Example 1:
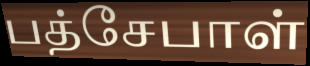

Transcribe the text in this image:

பத்சேபாள்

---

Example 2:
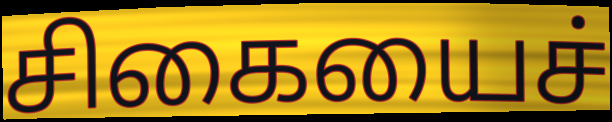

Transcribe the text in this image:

சிகையைச்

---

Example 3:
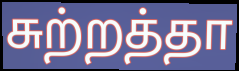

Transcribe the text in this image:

சுற்றத்தா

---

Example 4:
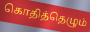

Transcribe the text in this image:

கொதித்தெழும்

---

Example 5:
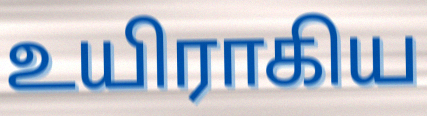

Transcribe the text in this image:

உயிராகிய